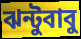
ঝন্টুবাবু